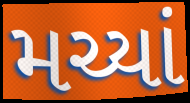
મચ્યાં